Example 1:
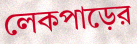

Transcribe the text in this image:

লেকপাড়ের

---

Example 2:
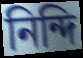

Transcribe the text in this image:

নিন্দি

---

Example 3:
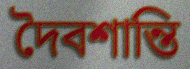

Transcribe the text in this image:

দৈবশান্তি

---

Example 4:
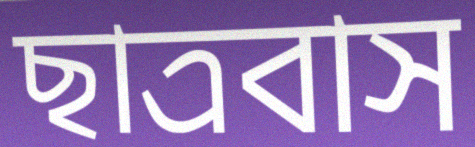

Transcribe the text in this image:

ছাত্রবাস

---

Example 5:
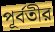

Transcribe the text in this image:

পূর্বতীর